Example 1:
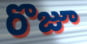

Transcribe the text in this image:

రొజూ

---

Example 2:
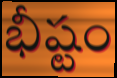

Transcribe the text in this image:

భీష్టం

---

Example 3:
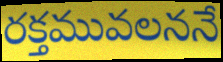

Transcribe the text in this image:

రక్తమువలననే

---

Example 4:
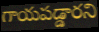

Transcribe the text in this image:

గాయపడ్డారని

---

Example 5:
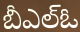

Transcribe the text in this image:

బీఎల్ఓ